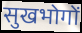
सुखभोगों